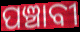
ପଞ୍ଚାବୀ